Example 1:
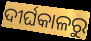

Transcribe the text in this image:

ଦୀର୍ଘକାଳରୁ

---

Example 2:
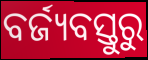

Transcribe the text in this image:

ବର୍ଜ୍ୟବସ୍ତୁରୁ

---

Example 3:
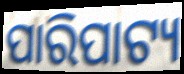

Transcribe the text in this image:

ପାରିପାଟ୍ୟ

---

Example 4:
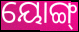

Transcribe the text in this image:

ୟୋଙ୍ଗ୍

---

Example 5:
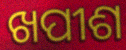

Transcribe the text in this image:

ଖପୀଶ